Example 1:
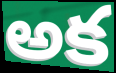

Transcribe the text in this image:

అక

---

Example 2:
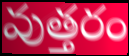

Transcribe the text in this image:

వుత్తరం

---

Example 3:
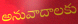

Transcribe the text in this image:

అనువాదాలకు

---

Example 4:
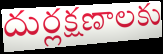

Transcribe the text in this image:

దుర్లక్షణాలకు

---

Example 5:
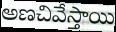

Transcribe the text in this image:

అణచివేస్తాయి